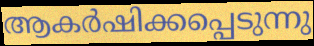
ആകർഷിക്കപ്പെടുന്നു